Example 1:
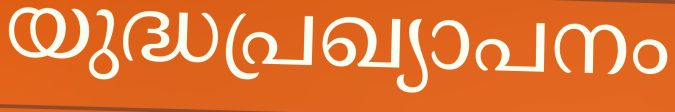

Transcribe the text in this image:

യുദ്ധപ്രഖ്യാപനം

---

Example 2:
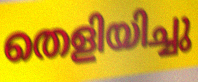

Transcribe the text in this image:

തെളിയിച്ചു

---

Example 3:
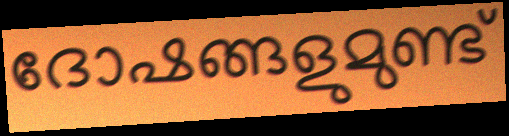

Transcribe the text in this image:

ദോഷങ്ങളുമുണ്ട്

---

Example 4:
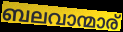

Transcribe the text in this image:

ബലവാന്മാര്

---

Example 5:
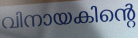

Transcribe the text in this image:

വിനായകിന്റെ